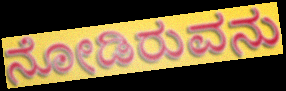
ನೋಡಿರುವನು